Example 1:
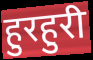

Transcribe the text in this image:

हुरहुरी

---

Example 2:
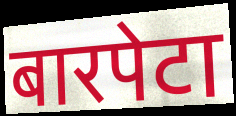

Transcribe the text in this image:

बारपेटा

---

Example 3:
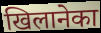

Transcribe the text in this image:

खिलानेका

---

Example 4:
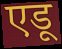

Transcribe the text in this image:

एडू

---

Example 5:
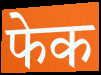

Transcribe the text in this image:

फेक